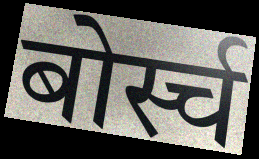
बोर्स्च